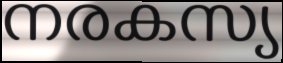
നരകസ്യ